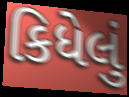
કિધેલું